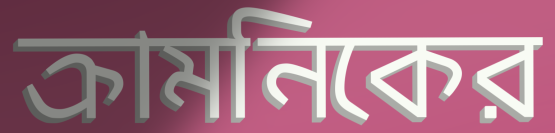
ক্রামনিকের